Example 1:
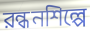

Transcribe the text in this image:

রন্ধনশিল্পে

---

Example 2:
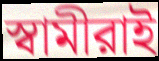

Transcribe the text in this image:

স্বামীরাই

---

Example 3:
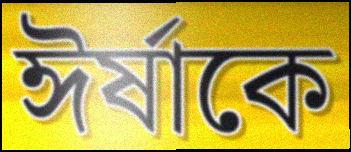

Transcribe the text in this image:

ঈর্ষাকে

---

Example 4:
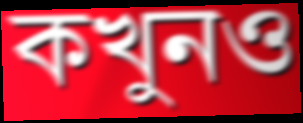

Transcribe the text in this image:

কখুনও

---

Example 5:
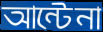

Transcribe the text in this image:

আন্টেনা